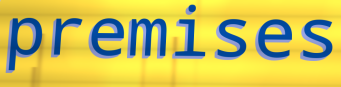
premises